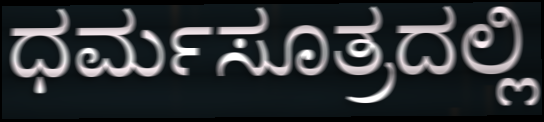
ಧರ್ಮಸೂತ್ರದಲ್ಲಿ